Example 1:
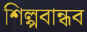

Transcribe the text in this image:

শিল্পবান্ধব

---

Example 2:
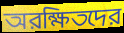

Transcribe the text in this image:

অরক্ষিতদের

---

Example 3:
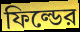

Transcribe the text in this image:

ফিল্ডের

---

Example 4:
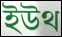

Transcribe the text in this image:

ইউথ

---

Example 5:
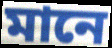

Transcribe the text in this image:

মানে